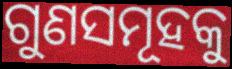
ଗୁଣସମୂହକୁ